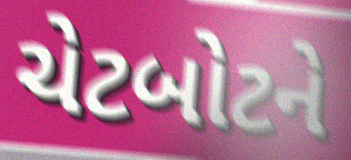
ચેટબોટને